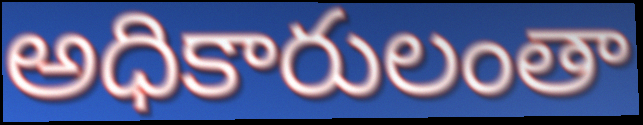
అధికారులంతా